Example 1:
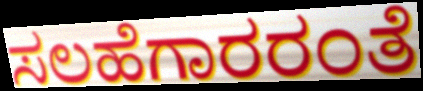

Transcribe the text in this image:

ಸಲಹೆಗಾರರಂತೆ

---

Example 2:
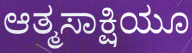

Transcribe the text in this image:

ಆತ್ಮಸಾಕ್ಷಿಯೂ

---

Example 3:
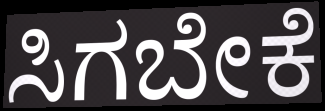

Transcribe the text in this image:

ಸಿಗಬೇಕೆ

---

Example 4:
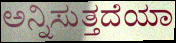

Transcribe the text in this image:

ಅನ್ನಿಸುತ್ತದೆಯಾ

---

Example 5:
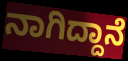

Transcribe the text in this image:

ನಾಗಿದ್ದಾನೆ